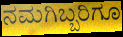
ನಮಗಿಬ್ಬರಿಗೂ